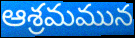
ఆశ్రమమున